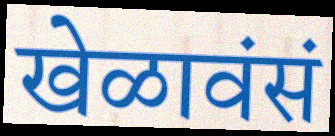
खेळावंसं